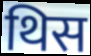
थिस